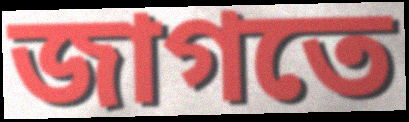
জাগতে